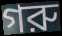
গরু